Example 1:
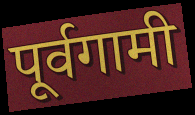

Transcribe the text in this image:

पूर्वगामी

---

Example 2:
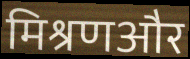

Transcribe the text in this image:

मिश्रणऔर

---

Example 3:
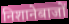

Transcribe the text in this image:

निशानेबाजों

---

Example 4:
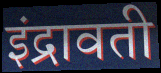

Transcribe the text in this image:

इंद्रावती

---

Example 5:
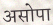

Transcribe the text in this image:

असोपा